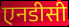
एनडीसी